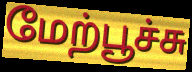
மேற்பூச்சு